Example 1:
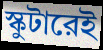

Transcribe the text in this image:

স্কুটারেই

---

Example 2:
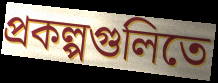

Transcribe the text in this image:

প্রকল্পগুলিতে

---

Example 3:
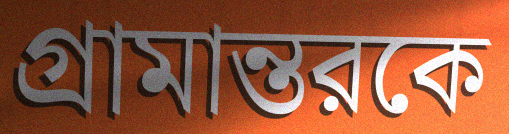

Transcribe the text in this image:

গ্রামান্তরকে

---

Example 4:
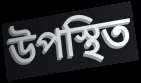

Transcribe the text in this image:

উপস্থিত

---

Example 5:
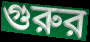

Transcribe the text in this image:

গুরুর